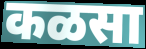
कळसा